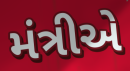
મંત્રીએ